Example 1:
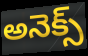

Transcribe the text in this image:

అనెక్స్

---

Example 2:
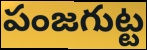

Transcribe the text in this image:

పంజగుట్ట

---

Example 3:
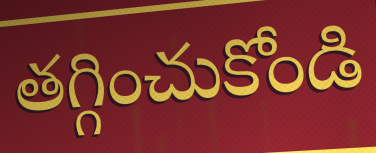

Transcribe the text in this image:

తగ్గించుకోండి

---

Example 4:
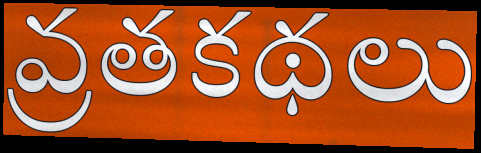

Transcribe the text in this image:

వ్రతకథలు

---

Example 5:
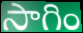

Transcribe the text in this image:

సాగిం